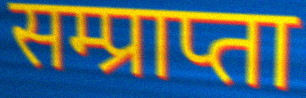
सम्प्राप्ता